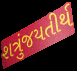
શત્રુંજયતીર્થ